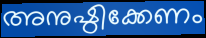
അനുഷ്ഠിക്കേണം